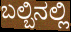
ಬಲ್ಬಿನಲ್ಲಿ